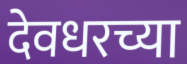
देवधरच्या